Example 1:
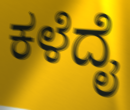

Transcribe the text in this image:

ಕಳೆದೈ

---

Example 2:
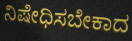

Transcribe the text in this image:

ನಿಷೇಧಿಸಬೇಕಾದ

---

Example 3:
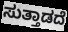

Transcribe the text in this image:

ಸುತ್ತಾಡದೆ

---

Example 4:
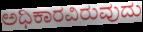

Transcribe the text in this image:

ಅಧಿಕಾರವಿರುವುದು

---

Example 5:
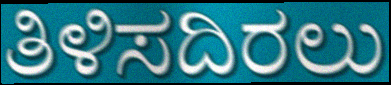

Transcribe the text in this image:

ತಿಳಿಸದಿರಲು